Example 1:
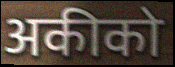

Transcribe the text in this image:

अकीको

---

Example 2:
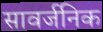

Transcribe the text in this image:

सावर्जनिक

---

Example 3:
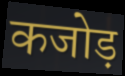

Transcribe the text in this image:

कजोड़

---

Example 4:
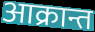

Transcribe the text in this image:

आक्रान्त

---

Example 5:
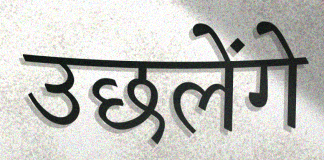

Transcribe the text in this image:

उछलेंगे